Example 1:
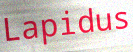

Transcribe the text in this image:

Lapidus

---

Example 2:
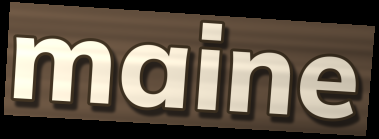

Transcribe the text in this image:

maine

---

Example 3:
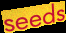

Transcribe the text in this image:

seeds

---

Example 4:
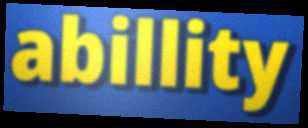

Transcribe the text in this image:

abillity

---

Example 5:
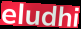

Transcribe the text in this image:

eludhi